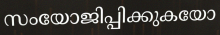
സംയോജിപ്പിക്കുകയോ